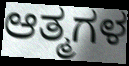
ಆತ್ಮಗಳ